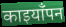
काइयाँपन